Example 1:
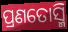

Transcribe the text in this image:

ପ୍ରଣତୋସ୍ମି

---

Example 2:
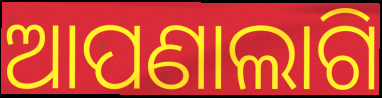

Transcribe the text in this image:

ଆପଣାଲାଗି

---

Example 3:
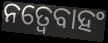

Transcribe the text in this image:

ନତ୍ୱେବାହଂ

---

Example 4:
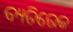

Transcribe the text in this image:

ବ୍ୟତିରେକ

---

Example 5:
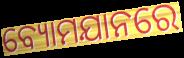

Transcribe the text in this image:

ବ୍ୟୋମଯାନରେ